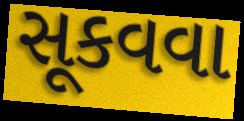
સૂકવવા